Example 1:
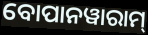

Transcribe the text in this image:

ବୋପାନୱାରାମ୍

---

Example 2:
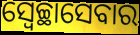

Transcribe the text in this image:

ସ୍ୱେଚ୍ଛାସେବାର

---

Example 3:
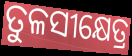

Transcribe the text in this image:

ତୁଳସୀକ୍ଷେତ୍ର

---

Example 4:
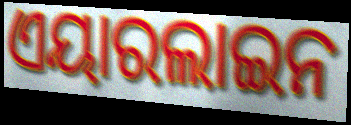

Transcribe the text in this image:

ଏୟାରଲାଇନ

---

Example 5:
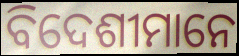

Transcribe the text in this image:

ବିଦେଶୀମାନେ